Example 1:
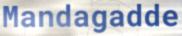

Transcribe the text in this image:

Mandagadde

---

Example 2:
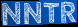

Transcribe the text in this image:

NNTR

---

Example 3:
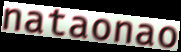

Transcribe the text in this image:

nataonao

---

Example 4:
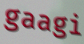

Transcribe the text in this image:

gaagi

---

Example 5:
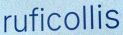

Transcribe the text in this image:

ruficollis